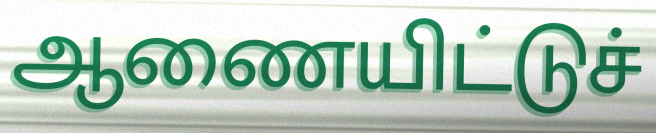
ஆணையிட்டுச்